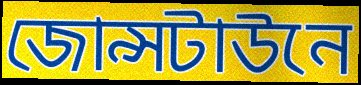
জোন্সটাউনে